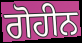
ਗੋਹੀਨ